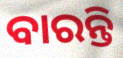
ବାରନ୍ତି